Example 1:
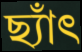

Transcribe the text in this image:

ছ্যাঁৎ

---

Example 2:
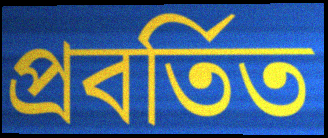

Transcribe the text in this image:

প্রবর্তিত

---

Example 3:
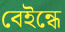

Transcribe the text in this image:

বেইন্ধে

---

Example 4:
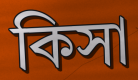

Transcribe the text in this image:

কিসা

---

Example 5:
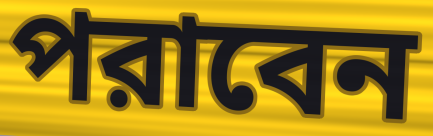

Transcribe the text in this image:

পরাবেন